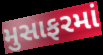
મુસાફરમાં